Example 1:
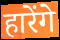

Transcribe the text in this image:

हारेंगे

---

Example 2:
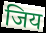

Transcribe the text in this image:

जिय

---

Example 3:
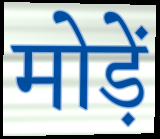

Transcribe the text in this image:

मोड़ें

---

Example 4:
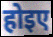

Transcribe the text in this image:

होइए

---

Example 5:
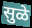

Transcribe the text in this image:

सुळे